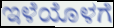
ಇಳೆಯೊಳಗೆ